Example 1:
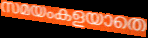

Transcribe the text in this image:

സമയംകളയാതെ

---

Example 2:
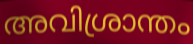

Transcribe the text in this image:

അവിശ്രാന്തം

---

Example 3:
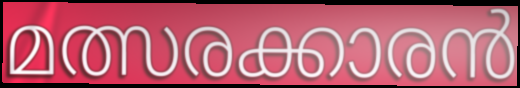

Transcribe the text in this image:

മത്സരക്കാരൻ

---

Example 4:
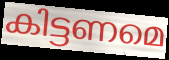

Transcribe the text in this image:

കിട്ടണമെ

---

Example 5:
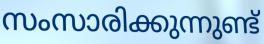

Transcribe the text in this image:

സംസാരിക്കുന്നുണ്ട്